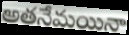
అతనేమయినా